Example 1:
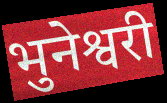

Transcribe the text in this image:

भुनेश्वरी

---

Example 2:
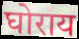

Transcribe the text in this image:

घोराय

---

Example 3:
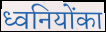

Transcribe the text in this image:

ध्वनियोंका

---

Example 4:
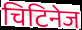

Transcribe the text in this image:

चिटिनेज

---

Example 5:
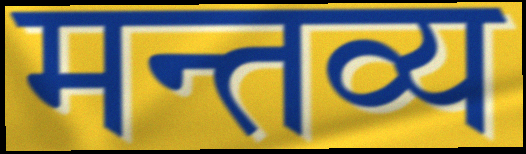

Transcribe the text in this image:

मन्तव्य